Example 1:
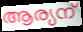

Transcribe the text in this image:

ആര്യന്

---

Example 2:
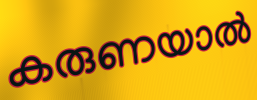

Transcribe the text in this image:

കരുണയാൽ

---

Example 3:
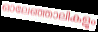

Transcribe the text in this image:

ഓലേഞ്ഞാലികളും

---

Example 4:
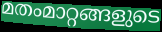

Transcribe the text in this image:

മതംമാറ്റങ്ങളുടെ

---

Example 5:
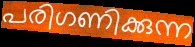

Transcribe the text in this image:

പരിഗണിക്കുന്ന